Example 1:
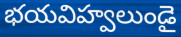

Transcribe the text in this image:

భయవిహ్వలుండై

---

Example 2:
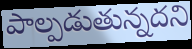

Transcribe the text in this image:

పాల్పడుతున్నదని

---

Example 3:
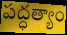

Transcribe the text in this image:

పద్ధత్యాం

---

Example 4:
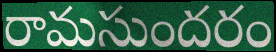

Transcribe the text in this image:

రామసుందరం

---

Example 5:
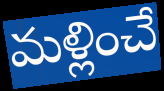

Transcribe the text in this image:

మళ్లించే